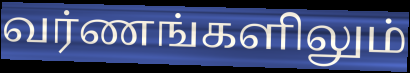
வர்ணங்களிலும்